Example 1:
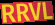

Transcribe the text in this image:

RRVL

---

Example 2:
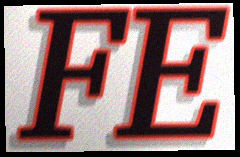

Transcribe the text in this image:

FE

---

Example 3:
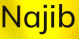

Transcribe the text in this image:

Najib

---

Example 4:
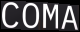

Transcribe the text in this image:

COMA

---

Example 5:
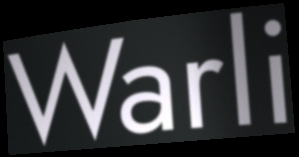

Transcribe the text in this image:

Warli